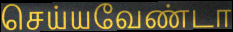
செய்யவேண்டா